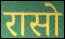
रासो